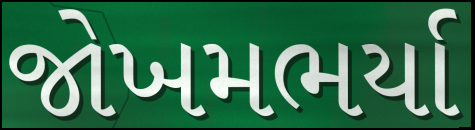
જોખમભર્યા